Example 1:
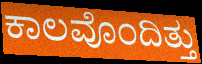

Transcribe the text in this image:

ಕಾಲವೊಂದಿತ್ತು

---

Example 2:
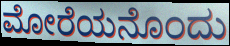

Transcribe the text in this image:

ಮೋರೆಯನೊಂದು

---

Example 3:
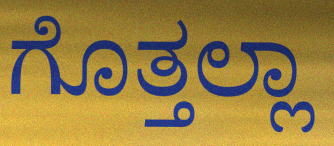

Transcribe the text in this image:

ಗೊತ್ತಲ್ಲಾ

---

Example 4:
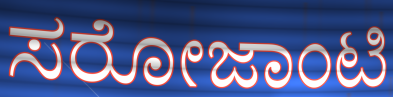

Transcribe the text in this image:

ಸರೋಜಾಂಟಿ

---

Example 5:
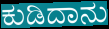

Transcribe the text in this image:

ಕುಡಿದಾನು